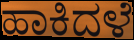
ಹಾಕಿದಳೆ